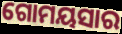
ଗୋମୟସାର